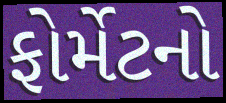
ફોર્મેટનો